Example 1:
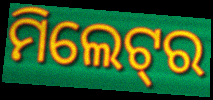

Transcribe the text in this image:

ମିଲେଟ୍‌ର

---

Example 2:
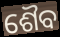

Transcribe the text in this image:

ଶୈବ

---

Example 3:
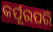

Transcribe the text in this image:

କର୍ପୂରପରି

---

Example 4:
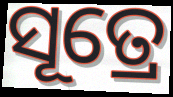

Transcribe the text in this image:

ସୂତ୍ରେ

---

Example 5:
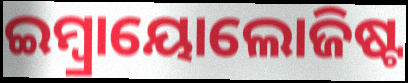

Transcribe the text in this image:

ଇମ୍ବ୍ରାୟୋଲୋଜିଷ୍ଟ